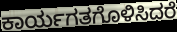
ಕಾರ್ಯಗತಗೊಳಿಸಿದರೆ